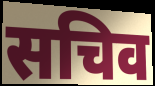
सचिव